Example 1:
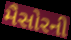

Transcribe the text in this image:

મૈસોરની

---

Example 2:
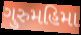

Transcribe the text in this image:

ગુરુમહિમા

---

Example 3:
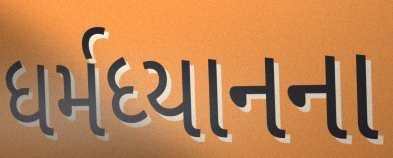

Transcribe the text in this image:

ધર્મધ્યાનના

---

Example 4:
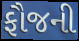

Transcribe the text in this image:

ફૌજની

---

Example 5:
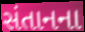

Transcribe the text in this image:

સંતાનના